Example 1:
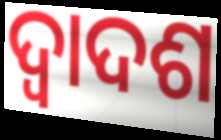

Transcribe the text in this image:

ଦ୍ବାଦଶ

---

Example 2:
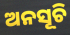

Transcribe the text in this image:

ଅନସୂଚି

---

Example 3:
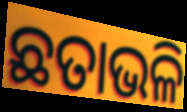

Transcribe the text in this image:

ଛତାଭଳି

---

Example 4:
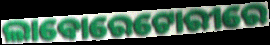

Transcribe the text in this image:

ଲାବୋରେଟୋରୀରେ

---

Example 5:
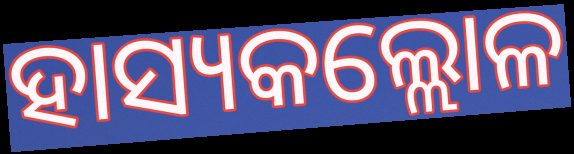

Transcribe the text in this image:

ହାସ୍ୟକଲ୍ଲୋଳ